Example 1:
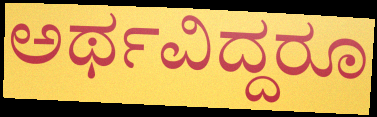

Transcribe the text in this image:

ಅರ್ಥವಿದ್ದರೂ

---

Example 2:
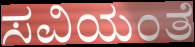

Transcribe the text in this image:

ಸವಿಯಂತೆ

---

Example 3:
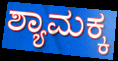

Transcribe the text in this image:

ಶ್ಯಾಮಕ್ಕ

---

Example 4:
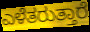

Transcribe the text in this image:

ಎಳೆತರುತ್ತಾರೆ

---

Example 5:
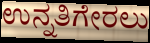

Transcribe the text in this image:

ಉನ್ನತಿಗೇರಲು